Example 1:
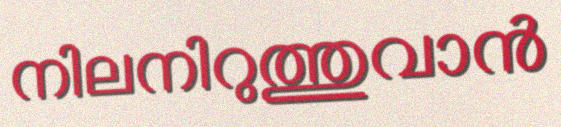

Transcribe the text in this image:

നിലനിറുത്തുവാൻ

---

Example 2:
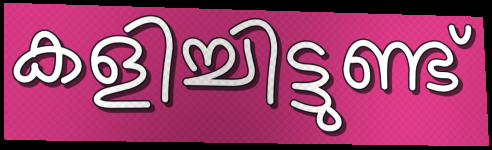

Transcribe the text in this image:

കളിച്ചിട്ടുണ്ട്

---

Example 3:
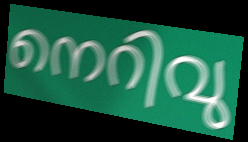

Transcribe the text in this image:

നെറിവു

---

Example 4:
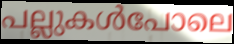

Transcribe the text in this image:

പല്ലുകൾപോലെ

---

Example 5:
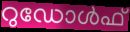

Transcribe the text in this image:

റുഡോൾഫ്